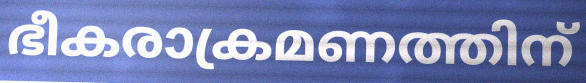
ഭീകരാക്രമണത്തിന്